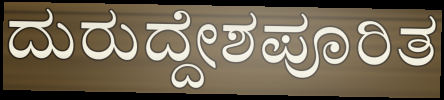
ದುರುದ್ದೇಶಪೂರಿತ